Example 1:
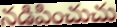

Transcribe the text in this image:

నడిపించుచు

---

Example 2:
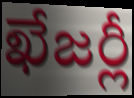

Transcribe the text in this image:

ఖేజర్లీ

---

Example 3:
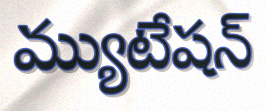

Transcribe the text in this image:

మ్యుటేషన్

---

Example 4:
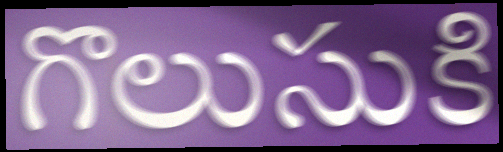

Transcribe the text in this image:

గొలుసుకి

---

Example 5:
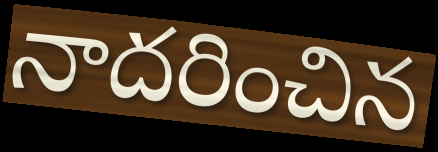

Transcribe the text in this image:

నాదరించిన